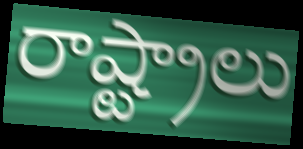
రాష్ట్రాలు